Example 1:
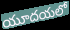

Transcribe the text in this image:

యూదయలో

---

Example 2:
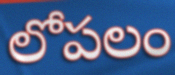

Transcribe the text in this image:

లోపలం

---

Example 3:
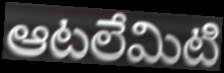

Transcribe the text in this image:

ఆటలేమిటి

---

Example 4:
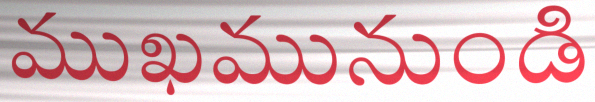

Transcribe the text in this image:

ముఖమునుండి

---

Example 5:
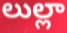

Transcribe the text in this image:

లుల్లా